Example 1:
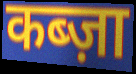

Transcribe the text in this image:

कब्ज़ा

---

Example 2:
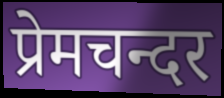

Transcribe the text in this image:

प्रेमचन्दर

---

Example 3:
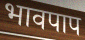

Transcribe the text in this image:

भावपाप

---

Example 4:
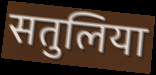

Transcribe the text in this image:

सतुलिया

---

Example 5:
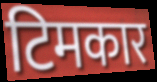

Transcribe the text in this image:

टिमकार